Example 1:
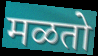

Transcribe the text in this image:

मळतो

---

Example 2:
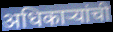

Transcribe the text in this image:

अधिकार्‍यांची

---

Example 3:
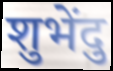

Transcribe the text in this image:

शुभेंदु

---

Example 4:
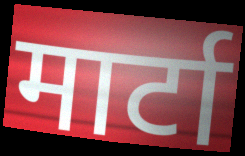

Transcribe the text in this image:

मार्टा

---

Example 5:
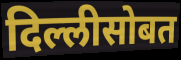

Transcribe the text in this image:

दिल्लीसोबत